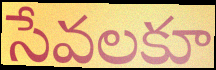
సేవలకూ